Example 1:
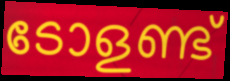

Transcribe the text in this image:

ടോളണ്ട്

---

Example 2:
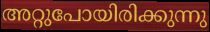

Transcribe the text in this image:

അറ്റുപോയിരിക്കുന്നു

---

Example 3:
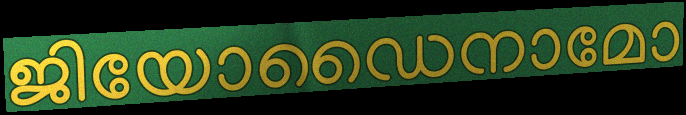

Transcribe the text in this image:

ജിയോഡൈനാമോ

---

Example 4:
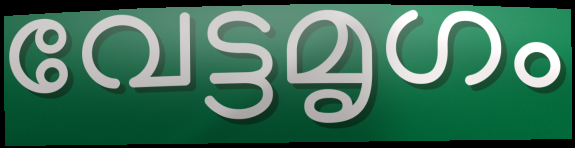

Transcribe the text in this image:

വേട്ടമൃഗം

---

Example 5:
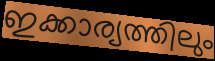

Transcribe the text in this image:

ഇക്കാര്യത്തിലും